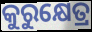
କୁରୁକ୍ଷେତ୍ର